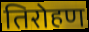
तिरोहण